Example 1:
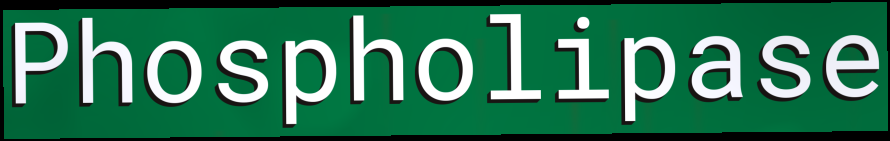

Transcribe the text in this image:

Phospholipase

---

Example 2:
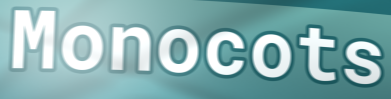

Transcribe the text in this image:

Monocots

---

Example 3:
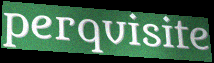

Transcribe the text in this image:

perquisite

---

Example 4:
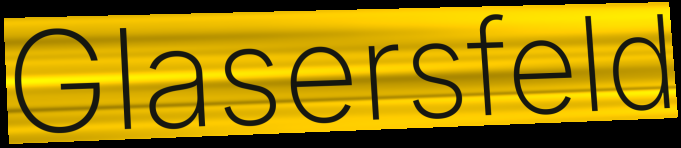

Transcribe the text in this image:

Glasersfeld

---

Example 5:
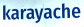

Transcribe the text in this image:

karayache